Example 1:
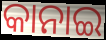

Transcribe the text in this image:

କାନାଇ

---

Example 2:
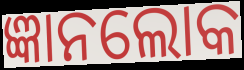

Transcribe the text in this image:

ଜ୍ଞାନଲୋକ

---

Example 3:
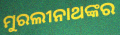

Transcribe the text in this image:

ମୁରଲୀନାଥଙ୍କର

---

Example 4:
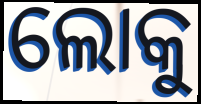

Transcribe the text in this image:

ଲୋକୁ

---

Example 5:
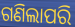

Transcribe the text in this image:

ଗଣିଲାପରି